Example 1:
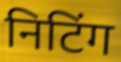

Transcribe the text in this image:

निटिंग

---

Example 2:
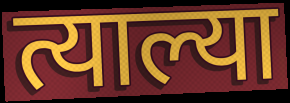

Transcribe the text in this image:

त्याल्या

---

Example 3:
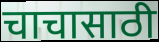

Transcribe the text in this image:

चाचासाठी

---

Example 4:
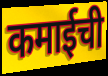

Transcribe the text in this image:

कमाईची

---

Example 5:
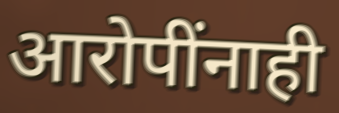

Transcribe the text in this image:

आरोपींनाही